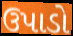
ઉપાડો